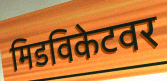
मिडविकेटवर